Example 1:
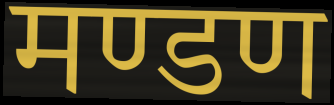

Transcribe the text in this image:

मण्डण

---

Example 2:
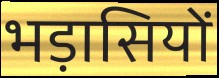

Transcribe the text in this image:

भड़ासियों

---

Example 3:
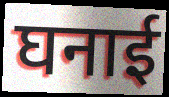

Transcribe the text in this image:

घनाई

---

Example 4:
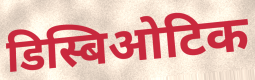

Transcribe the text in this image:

डिस्बिओटिक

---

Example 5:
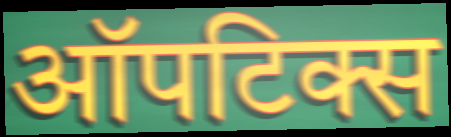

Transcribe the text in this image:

ऑपटिक्स